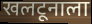
खलटूनाला